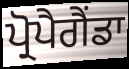
ਪ੍ਰੋਪੈਗੈਂਡਾ